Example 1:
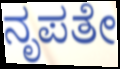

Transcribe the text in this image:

ನೃಪತೇ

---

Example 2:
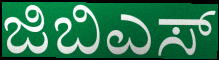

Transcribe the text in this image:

ಜಿಬಿಎಸ್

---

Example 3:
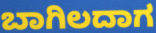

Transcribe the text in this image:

ಬಾಗಿಲದಾಗ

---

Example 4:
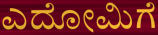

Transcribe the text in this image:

ಎದೋಮಿಗೆ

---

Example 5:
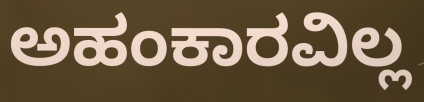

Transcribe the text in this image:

ಅಹಂಕಾರವಿಲ್ಲ